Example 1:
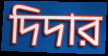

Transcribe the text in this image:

দিদার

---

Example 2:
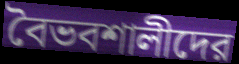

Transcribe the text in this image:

বৈভবশালীদের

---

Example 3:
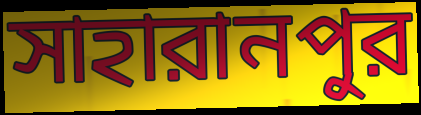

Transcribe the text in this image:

সাহারানপুর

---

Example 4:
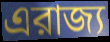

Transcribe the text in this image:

এরাজ্য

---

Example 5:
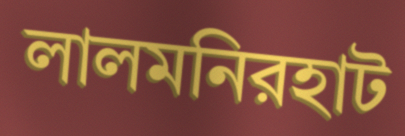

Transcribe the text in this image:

লালমনিরহাট